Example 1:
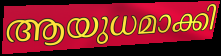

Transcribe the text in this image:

ആയുധമാക്കി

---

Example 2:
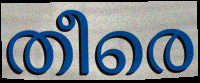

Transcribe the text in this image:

തീരെ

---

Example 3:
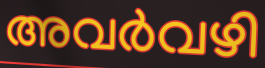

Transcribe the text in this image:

അവർവഴി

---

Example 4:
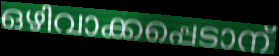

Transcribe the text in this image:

ഒഴിവാക്കപ്പെടാന്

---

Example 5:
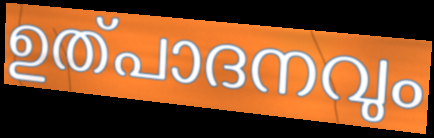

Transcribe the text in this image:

ഉത്പാദനവും